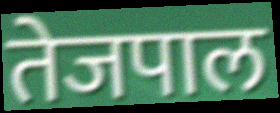
तेजपाल